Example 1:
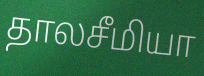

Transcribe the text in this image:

தாலசீமியா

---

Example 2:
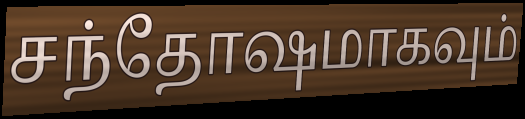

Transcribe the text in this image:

சந்தோஷமாகவும்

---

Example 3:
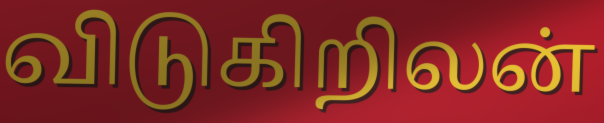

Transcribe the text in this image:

விடுகிறிலன்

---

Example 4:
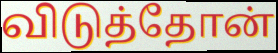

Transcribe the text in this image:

விடுத்தோன்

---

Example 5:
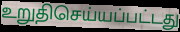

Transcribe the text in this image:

உறுதிசெய்யப்பட்டது